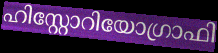
ഹിസ്റ്റോറിയോഗ്രാഫി